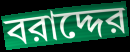
বরাদ্দের